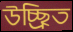
উচ্ছ্রিত